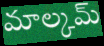
మాల్కమ్